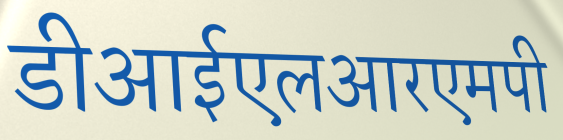
डीआईएलआरएमपी